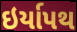
ઇર્યાપથ